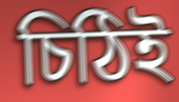
চিঠিই